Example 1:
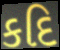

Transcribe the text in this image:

કદિ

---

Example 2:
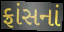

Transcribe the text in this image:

ફ્રાંસનાં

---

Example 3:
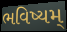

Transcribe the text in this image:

ભવિષ્યમ્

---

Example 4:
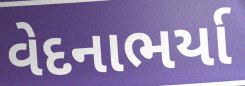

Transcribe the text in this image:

વેદનાભર્યા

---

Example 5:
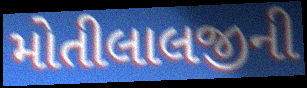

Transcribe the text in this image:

મોતીલાલજીની